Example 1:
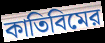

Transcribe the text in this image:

কাতিবিমের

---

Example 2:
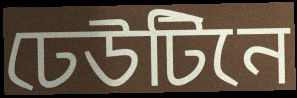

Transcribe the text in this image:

ঢেউটিনে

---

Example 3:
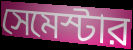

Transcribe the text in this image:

সেমেস্টার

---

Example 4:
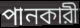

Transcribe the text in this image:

পানকারী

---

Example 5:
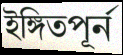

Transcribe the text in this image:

ইঙ্গিতপূর্ন